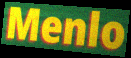
Menlo